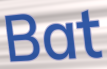
Bat